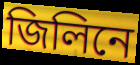
জিলিনে